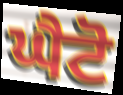
ਘੈਟੋ